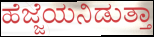
ಹೆಜ್ಜೆಯನಿಡುತ್ತಾ